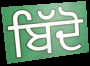
ਬਿੱਦੋ